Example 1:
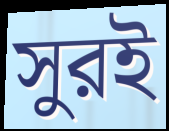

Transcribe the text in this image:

সুরই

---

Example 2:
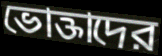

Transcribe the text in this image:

ভোক্তাদের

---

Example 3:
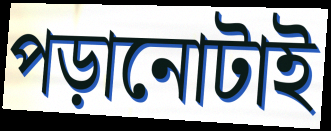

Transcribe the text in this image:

পড়ানোটাই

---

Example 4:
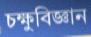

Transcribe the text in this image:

চক্ষুবিজ্ঞান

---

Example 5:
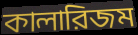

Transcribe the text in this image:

কালারিজম